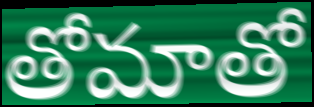
తోమాతో